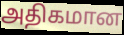
அதிகமான